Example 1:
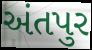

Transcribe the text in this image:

અંતપુર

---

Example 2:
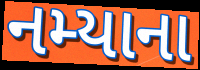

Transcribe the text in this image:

નમ્યાના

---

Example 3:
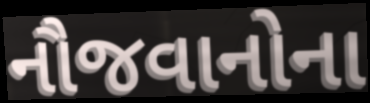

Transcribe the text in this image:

નૌજવાનોના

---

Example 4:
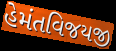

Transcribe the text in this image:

હેમંતવિજયજી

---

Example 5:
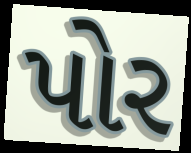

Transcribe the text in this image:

પોર